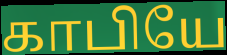
காபியே